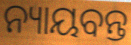
ନ୍ୟାୟବନ୍ତ